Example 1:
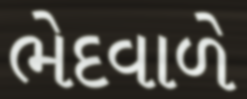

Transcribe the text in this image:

ભેદવાળે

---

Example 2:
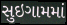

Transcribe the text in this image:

સુઇગામમાં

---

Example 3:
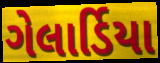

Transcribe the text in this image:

ગેલાર્ડિયા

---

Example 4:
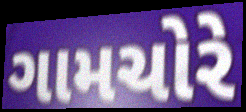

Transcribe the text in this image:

ગામચોરે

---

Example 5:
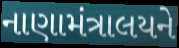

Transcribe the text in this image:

નાણામંત્રાલયને